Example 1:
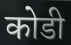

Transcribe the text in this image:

कोडी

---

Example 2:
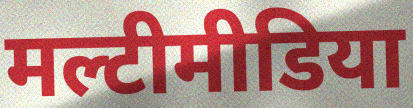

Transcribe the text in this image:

मल्टीमीडिया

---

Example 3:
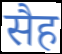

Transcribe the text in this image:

सैह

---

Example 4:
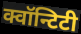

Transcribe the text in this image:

क्वॉन्टिटी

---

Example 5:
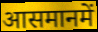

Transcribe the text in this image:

आसमानमें